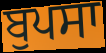
ਬੁਪਸਾ